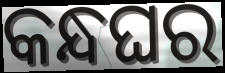
କନ୍ଧଘର